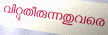
വിറ്റുതീരുന്നതുവരെ